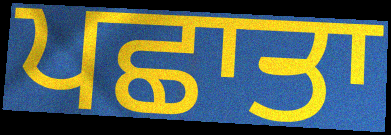
ਪਛਾਤਾ